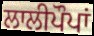
ਲਾਲੀਪੌਪਾਂ